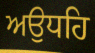
ਅਉਧਹਿ